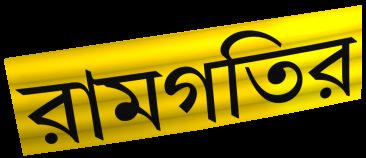
রামগতির